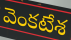
వెంకటేశ